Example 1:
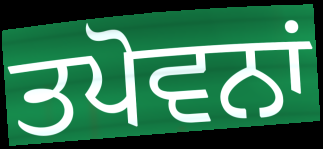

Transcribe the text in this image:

ਤਪੋਵਨਾਂ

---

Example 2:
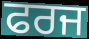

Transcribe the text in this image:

ਫਰਜ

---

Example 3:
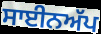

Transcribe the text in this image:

ਸਾਈਨਅੱਪ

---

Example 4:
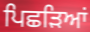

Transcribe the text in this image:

ਪਿਛੜਿਆਂ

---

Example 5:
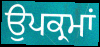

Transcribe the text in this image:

ਉਪਕ੍ਰਮਾਂ